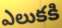
ఎలుకకి